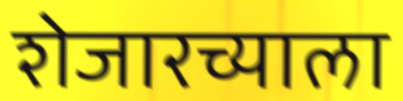
शेजारच्याला